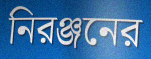
নিরঞ্জনের